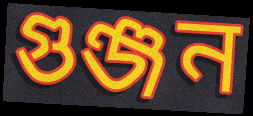
গুঞ্জন